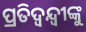
ପ୍ରତିଦ୍ବନ୍ଦ୍ବୀଙ୍କୁ